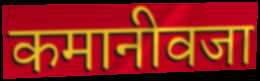
कमानीवजा